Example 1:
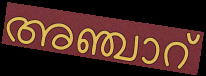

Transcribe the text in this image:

അഞ്ചാറ്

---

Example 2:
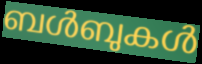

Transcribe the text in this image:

ബൾബുകൾ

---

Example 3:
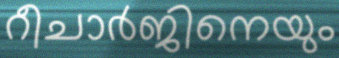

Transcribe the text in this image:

റീചാർജിനെയും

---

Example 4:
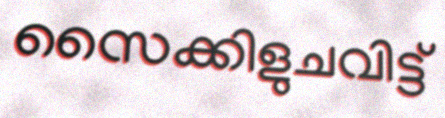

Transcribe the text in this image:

സൈക്കിളുചവിട്ട്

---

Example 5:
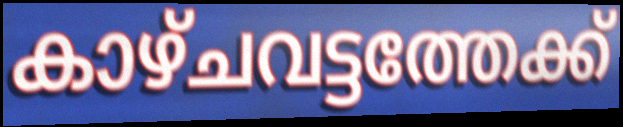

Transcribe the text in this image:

കാഴ്ചവട്ടത്തേക്ക്